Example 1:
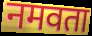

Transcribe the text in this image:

नमवता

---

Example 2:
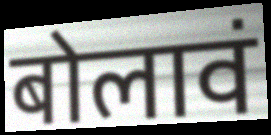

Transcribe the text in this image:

बोलावं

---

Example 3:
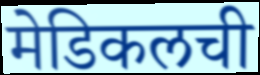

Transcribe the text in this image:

मेडिकलची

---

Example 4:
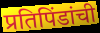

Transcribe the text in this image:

प्रतिपिंडांची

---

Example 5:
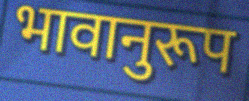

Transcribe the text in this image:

भावानुरूप